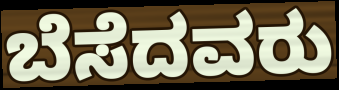
ಬೆಸೆದವರು